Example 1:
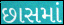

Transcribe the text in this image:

છાસમાં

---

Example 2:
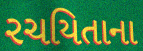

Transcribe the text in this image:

રચયિતાના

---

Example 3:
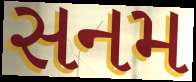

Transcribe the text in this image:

સનમ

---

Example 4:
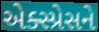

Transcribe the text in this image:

એક્સ્પ્રેસને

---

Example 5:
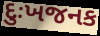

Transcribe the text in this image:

દુઃખજનક